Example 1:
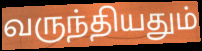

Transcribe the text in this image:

வருந்தியதும்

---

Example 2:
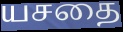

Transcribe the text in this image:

யசதை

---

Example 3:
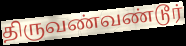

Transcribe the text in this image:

திருவண்வண்டூர்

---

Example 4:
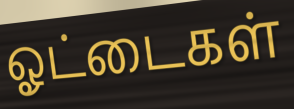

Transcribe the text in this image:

ஓட்டைகள்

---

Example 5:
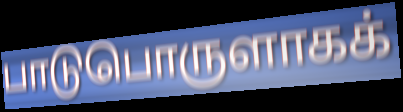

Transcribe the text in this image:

பாடுபொருளாகக்